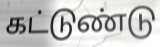
கட்டுண்டு